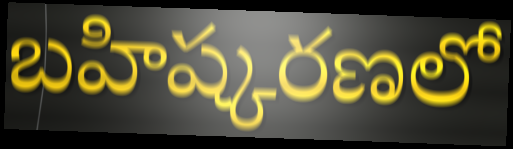
బహిష్కరణలో